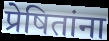
प्रेषितांना